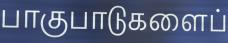
பாகுபாடுகளைப்